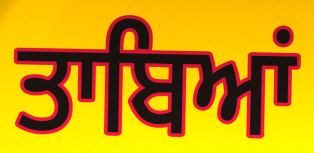
ਤਾਬਿਆਂ